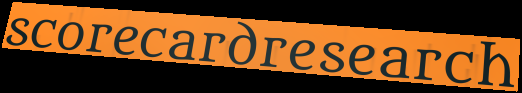
scorecardresearch